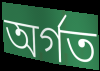
অৰ্গত